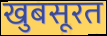
खुबसूरत